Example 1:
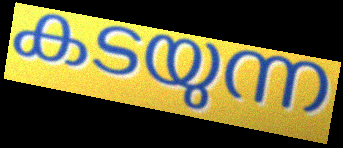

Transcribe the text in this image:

കടയുന്ന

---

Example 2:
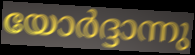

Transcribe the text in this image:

യോർദ്ദാന്നു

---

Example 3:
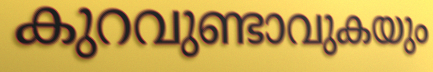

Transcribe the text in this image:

കുറവുണ്ടാവുകയും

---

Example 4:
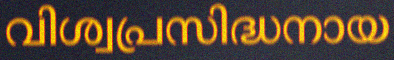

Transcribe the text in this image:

വിശ്വപ്രസിദ്ധനായ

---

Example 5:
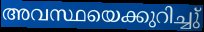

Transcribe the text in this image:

അവസ്ഥയെക്കുറിച്ചു്